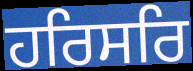
ਹਰਿਸਰਿ